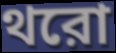
থরো